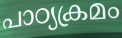
പാഠ്യക്രമം